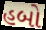
હબો